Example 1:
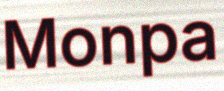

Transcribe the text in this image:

Monpa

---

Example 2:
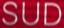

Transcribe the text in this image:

SUD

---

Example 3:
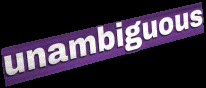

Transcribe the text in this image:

unambiguous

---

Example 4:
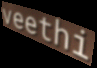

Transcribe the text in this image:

veethi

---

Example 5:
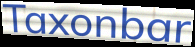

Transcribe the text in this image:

Taxonbar